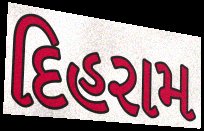
દિહરામ